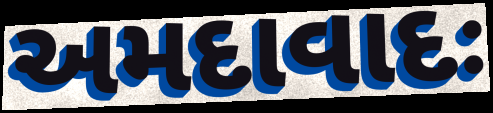
અમદાવાદઃ